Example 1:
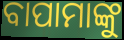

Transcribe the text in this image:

ବାପାମାଙ୍କୁ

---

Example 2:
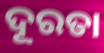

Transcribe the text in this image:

ଦୂରତା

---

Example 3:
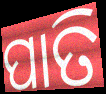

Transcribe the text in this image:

ପାତି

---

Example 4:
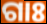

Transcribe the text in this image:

ଗାଃ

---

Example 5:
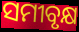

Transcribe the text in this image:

ସମୀବୃକ୍ଷ